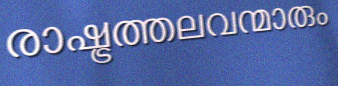
രാഷ്ട്രത്തലവന്മാരും